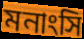
মনাংসি